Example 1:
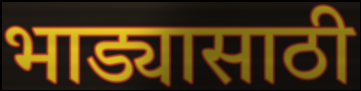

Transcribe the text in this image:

भाड्यासाठी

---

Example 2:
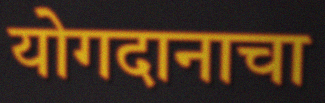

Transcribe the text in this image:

योगदानाचा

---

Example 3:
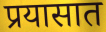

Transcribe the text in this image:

प्रयासात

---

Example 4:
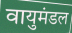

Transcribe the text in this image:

वायुमंडल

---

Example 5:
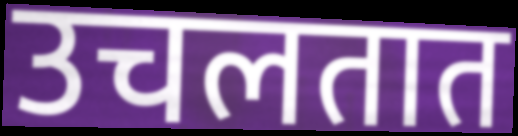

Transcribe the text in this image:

उचलतात